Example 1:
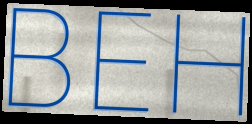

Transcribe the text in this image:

BEH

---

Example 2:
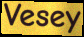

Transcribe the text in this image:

Vesey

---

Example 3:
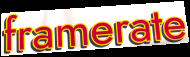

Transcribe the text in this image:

framerate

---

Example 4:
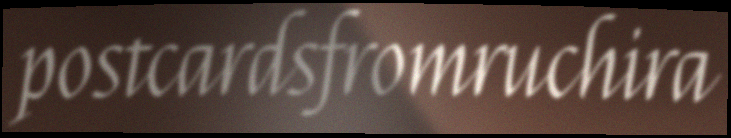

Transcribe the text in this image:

postcardsfromruchira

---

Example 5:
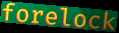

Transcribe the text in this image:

forelock